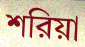
শরিয়া